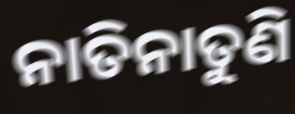
ନାତିନାତୁଣି